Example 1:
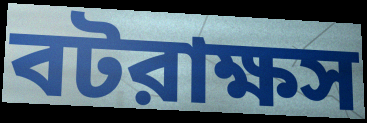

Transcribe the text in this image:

বটরাক্ষস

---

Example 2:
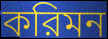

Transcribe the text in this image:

করিমন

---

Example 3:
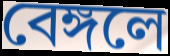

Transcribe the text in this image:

বেঙ্গলে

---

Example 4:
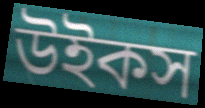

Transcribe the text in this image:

উইকস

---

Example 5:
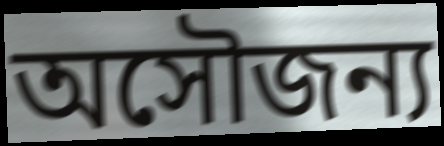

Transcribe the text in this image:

অসৌজন্য